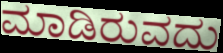
ಮಾಡಿರುವದು